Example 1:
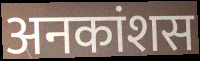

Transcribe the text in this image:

अनकांशस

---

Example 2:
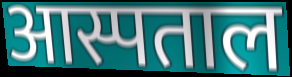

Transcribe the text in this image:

आस्पताल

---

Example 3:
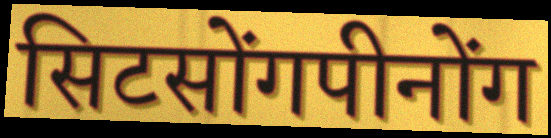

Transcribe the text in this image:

सिटसोंगपीनोंग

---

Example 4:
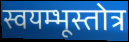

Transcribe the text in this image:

स्वयम्भूस्तोत्र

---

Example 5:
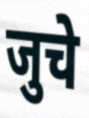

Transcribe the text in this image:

जुचे